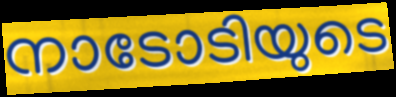
നാടോടിയുടെ